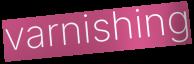
varnishing